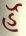
ર્હૅ